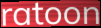
ratoon